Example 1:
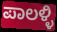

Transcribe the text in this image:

ಪಾಲಳ್ಳಿ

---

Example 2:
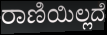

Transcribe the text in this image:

ರಾಣಿಯಿಲ್ಲದೆ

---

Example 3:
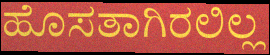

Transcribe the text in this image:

ಹೊಸತಾಗಿರಲಿಲ್ಲ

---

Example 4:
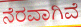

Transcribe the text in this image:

ನೆರವಾಗಿವೆ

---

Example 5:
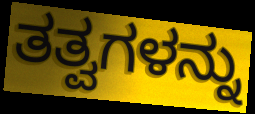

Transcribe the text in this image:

ತತ್ವಗಳನ್ನು